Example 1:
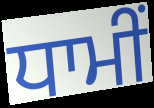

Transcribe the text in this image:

ਧਾਮੀਂ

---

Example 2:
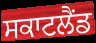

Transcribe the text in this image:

ਸਕਾਟਲੈਂਡ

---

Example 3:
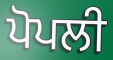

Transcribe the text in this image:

ਪੋਪਲੀ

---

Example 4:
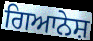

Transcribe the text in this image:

ਗਿਆਨੇਸ਼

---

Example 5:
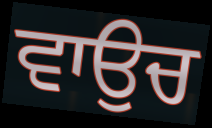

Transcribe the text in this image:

ਵਾਉਚ